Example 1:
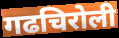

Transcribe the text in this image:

गढचिरोली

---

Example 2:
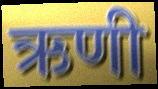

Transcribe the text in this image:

ऋणी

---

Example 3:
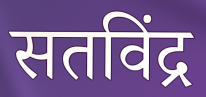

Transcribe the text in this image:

सतविंद्र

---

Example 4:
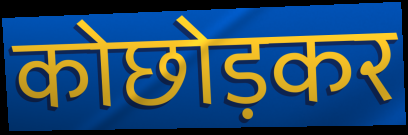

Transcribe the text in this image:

कोछोड़कर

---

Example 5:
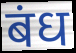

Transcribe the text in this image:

बंध